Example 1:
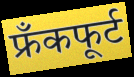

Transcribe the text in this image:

फ्रँकफूर्ट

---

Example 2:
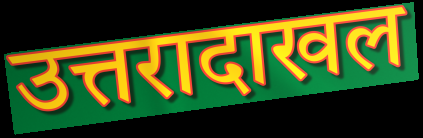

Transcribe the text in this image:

उत्तरादाखल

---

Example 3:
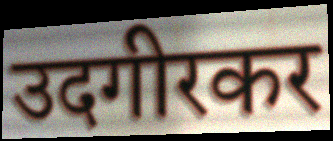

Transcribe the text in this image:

उदगीरकर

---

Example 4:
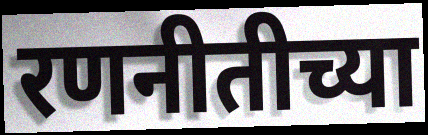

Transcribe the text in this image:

रणनीतीच्या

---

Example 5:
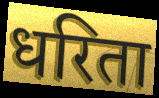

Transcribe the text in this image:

धरिता